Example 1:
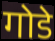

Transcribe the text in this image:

गोडे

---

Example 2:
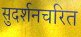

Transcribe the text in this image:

सुदर्शनचरित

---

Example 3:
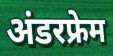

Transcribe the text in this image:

अंडरफ्रेम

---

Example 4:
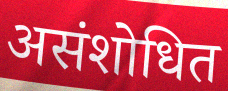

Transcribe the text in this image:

असंशोधित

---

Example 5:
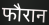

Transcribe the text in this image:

फौरान